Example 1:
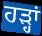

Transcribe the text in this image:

ਹੜ੍ਹਾਂ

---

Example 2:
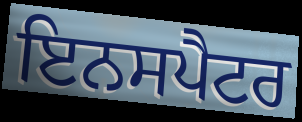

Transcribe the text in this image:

ਇਨਸਪੈਟਰ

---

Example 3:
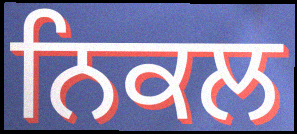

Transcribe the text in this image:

ਨਿਕਲ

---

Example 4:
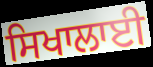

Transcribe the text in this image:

ਸਿਖਾਲਾਈ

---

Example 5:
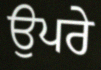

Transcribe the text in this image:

ਉਪਰੇ